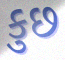
કુછ